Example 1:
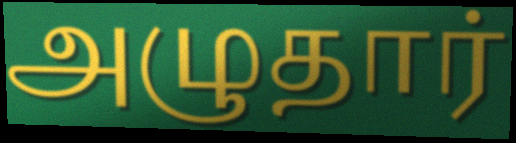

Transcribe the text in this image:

அழுதார்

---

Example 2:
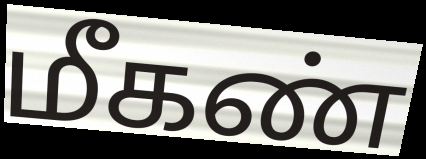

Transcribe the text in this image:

மீகண்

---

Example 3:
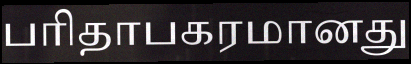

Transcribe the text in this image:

பரிதாபகரமானது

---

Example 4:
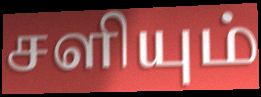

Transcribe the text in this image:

சளியும்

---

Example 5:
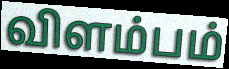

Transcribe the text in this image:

விளம்பம்